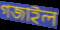
গজাইল